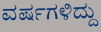
ವರ್ಷಗಳಿದ್ದು